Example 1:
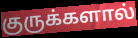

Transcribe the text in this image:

குருக்களால்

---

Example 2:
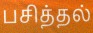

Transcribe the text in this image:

பசித்தல்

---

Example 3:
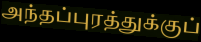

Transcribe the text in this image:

அந்தப்புரத்துக்குப்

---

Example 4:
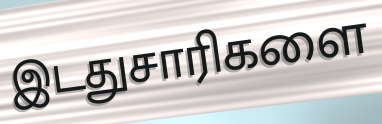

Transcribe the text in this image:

இடதுசாரிகளை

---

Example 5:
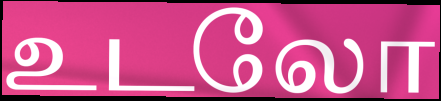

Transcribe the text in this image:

உடலோ